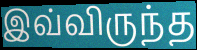
இவ்விருந்த